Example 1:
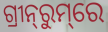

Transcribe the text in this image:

ଗ୍ରୀନ୍‌ରୁମ୍‌ରେ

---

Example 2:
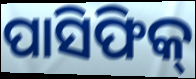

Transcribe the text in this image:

ପାସିଫିକ୍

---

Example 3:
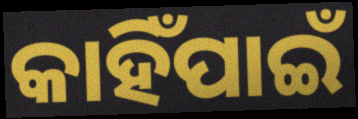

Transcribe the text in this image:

କାହିଁପାଇଁ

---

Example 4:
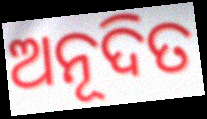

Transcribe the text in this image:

ଅନୂଦିତ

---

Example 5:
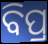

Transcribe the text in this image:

ବିପ୍ର